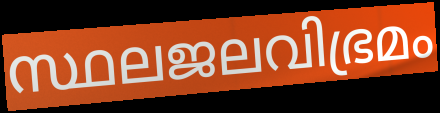
സ്ഥലജലവിഭ്രമം